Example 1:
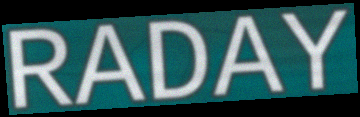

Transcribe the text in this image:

RADAY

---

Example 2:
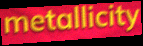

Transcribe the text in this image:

metallicity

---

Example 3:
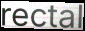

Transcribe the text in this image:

rectal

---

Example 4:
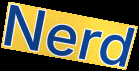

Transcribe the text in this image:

Nerd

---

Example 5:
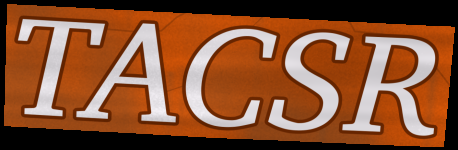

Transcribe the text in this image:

TACSR